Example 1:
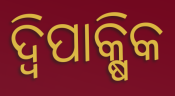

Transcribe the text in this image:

ଦ୍ୱିପାକ୍ଷିକ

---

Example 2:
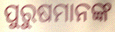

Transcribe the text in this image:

ପୁରୁଷମାନଙ୍କ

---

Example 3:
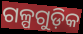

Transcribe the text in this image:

ଗଳ୍ପଗୁଡ଼ିକ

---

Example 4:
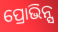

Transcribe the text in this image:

ପ୍ରୋଭିନ୍ସ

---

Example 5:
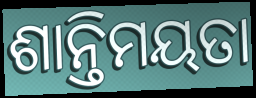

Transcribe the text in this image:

ଶାନ୍ତିମୟତା